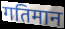
गतिमान